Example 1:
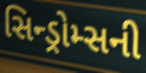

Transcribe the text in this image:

સિન્ડ્રોમ્સની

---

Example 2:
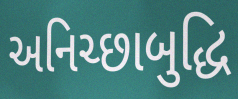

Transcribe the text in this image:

અનિચ્છાબુદ્ધિ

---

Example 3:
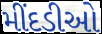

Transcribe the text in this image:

મીંદડીઓ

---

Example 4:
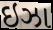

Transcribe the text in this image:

ઇઝા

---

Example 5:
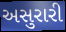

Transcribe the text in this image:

અસુરારી